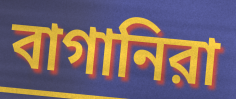
বাগানিরা